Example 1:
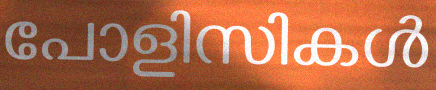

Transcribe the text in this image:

പോളിസികൾ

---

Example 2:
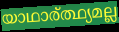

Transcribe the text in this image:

യാഥാര്ത്ഥ്യമല്ല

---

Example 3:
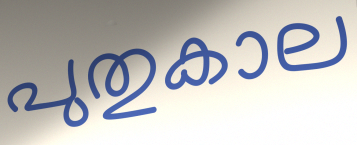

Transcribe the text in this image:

പുതുകാല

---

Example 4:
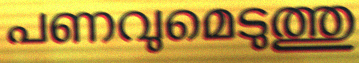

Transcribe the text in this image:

പണവുമെടുത്തു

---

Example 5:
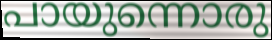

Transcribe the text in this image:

പായുന്നൊരു